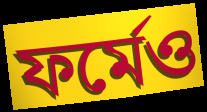
ফর্মেও